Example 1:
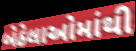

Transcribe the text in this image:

બેઠેલાઓમાંથી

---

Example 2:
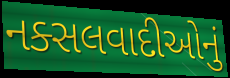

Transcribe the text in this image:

નક્સલવાદીઓનું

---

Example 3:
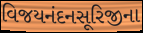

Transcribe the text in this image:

વિજયનંદનસૂરિજીના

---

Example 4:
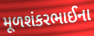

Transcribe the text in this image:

મૂળશંકરભાઈના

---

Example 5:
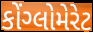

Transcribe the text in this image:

કોંગ્લોમેરેટ